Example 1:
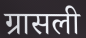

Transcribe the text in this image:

ग्रासली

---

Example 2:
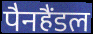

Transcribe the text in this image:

पैनहैंडल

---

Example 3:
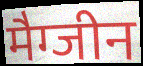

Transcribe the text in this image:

मैग्जीन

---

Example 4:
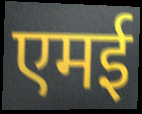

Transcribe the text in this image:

एमई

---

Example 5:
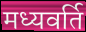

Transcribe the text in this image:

मध्यवर्ति